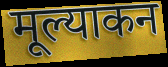
मूल्याकन